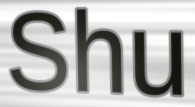
Shu